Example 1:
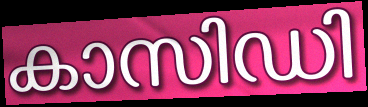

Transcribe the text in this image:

കാസിഡി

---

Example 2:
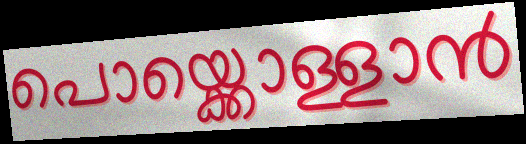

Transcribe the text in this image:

പൊയ്ക്കൊള്ളാൻ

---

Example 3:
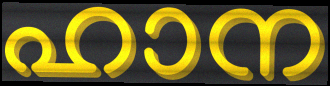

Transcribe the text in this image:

ഹാന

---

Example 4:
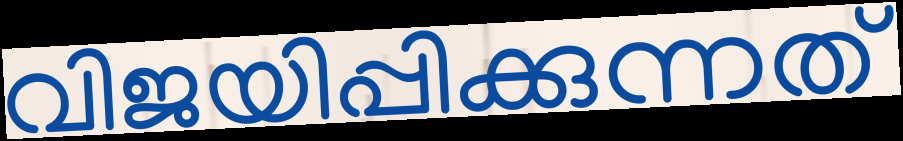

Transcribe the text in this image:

വിജയിപ്പിക്കുന്നത്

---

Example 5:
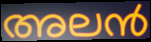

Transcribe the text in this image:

അലൻ